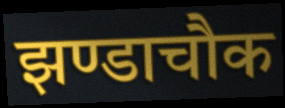
झण्डाचौक